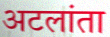
अटलांता